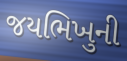
જયભિખુની